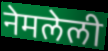
नेमलेली